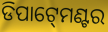
ଡିପାଟ୍‍ମେଣ୍ଟର